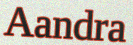
Aandra